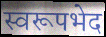
स्वरूपभेद